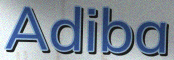
Adiba